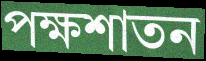
পক্ষশাতন